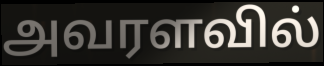
அவரளவில்